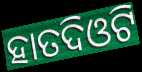
ହାତଦିଓଟି